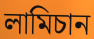
লামিচান